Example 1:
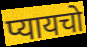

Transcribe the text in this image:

प्यायचो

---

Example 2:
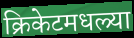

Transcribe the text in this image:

क्रिकेटमधल्या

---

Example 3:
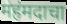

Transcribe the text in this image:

महंमदाचा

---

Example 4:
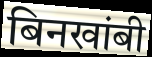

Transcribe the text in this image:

बिनखांबी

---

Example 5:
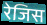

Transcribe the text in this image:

रेजिस